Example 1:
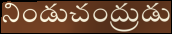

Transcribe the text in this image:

నిండుచంద్రుడు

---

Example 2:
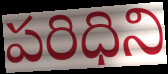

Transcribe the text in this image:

పరిధిని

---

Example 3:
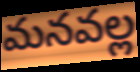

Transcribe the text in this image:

మనవల్ల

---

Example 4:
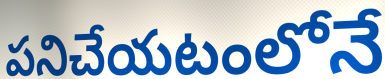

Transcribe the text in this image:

పనిచేయటంలోనే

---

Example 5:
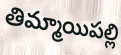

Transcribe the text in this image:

తిమ్మాయిపల్లి